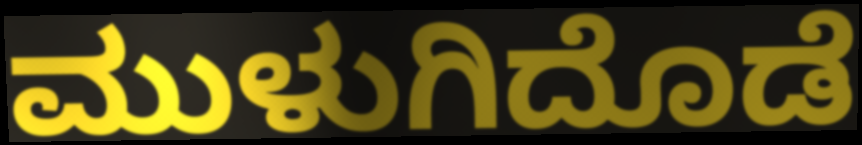
ಮುಳುಗಿದೊಡೆ